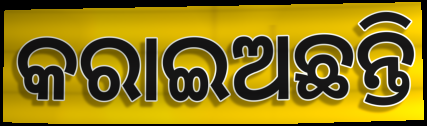
କରାଇଅଛନ୍ତି